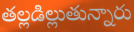
తల్లడిల్లుతున్నారు